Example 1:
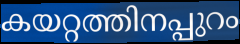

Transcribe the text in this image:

കയറ്റത്തിനപ്പുറം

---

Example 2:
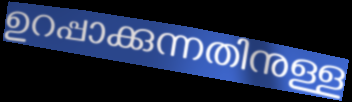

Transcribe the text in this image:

ഉറപ്പാക്കുന്നതിനുള്ള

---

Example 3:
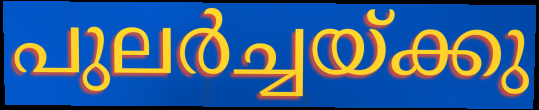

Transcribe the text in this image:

പുലർച്ചയ്ക്കു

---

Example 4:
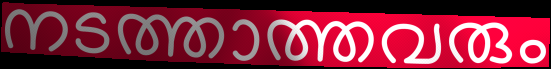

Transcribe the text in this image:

നടത്താത്തവരും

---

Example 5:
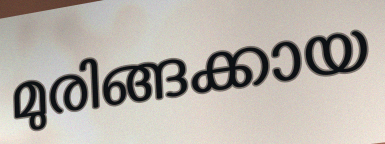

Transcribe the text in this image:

മുരിങ്ങക്കായ